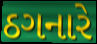
ઠગનારે